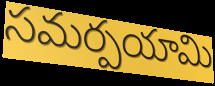
సమర్పయామి